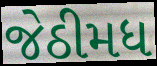
જેઠીમધ